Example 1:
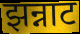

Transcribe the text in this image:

झन्नाट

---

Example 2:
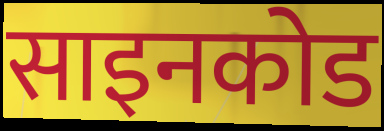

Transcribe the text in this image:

साइनकोड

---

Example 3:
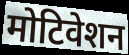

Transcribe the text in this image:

मोटिवेशन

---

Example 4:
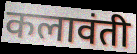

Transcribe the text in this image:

कलावंती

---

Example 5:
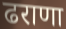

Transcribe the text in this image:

ढराणा